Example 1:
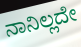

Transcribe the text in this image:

ನಾನಿಲ್ಲದೇ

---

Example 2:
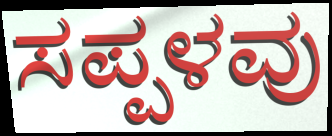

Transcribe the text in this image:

ಸಪ್ಪಳವು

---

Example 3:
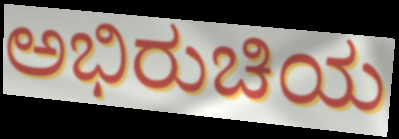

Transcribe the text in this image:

ಅಭಿರುಚಿಯ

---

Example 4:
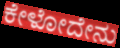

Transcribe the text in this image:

ಕೇಳೋದೇನು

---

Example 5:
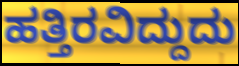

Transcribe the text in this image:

ಹತ್ತಿರವಿದ್ದುದು